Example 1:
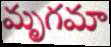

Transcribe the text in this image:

మృగమా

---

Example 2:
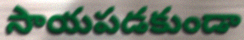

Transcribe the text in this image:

సాయపడకుండా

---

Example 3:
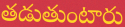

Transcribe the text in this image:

తడుతుంటారు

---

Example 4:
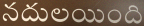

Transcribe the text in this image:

నదులయింది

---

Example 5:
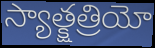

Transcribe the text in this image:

స్యాత్క్షత్రియో